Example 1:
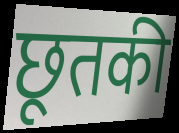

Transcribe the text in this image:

छूतकी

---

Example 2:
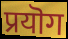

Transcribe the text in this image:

प्रयॊग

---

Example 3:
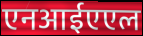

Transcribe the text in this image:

एनआईएएल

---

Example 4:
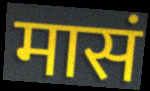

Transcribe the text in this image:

मासं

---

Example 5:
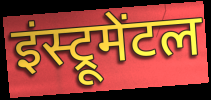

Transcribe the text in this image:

इंस्ट्रूमेंटल